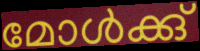
മോൾക്കു്